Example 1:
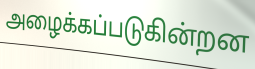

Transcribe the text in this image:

அழைக்கப்படுகின்றன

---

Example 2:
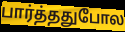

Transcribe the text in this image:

பார்த்ததுபோல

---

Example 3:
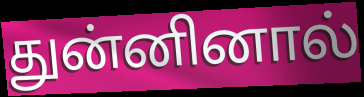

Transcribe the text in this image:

துன்னினால்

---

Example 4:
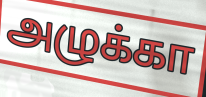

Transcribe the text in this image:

அழுக்கா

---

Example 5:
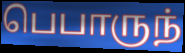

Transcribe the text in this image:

பெபாருந்